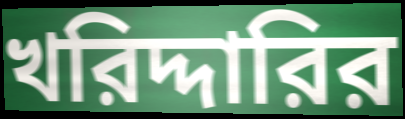
খরিদ্দারির